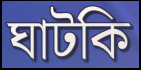
ঘাটকি